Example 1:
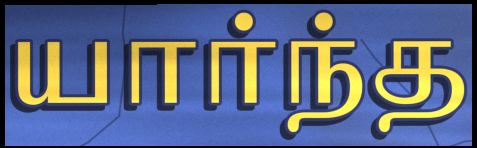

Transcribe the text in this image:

யார்ந்த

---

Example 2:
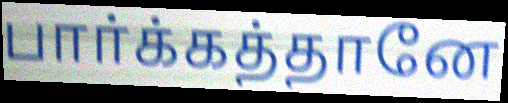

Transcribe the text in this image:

பார்க்கத்தானே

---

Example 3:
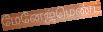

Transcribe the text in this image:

மேனேஜ்மெண்ட்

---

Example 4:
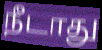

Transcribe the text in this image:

நீடாது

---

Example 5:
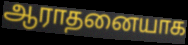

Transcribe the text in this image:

ஆராதனையாக